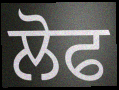
ਲੋਫ